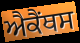
ਐਕੈਂਥਸ